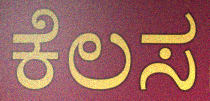
ಕೆಲಸ